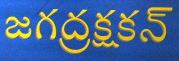
జగద్రక్షకన్